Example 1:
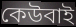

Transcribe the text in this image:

কেউবাই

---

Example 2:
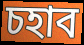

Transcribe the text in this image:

চহাব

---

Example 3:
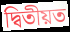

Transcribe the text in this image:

দ্বিতীয়ত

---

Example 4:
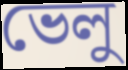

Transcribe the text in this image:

ভেলু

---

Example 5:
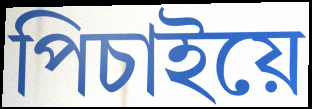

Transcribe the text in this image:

পিচাইয়ে